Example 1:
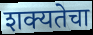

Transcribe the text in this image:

शक्यतेचा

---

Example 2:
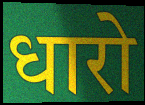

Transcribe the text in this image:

धारो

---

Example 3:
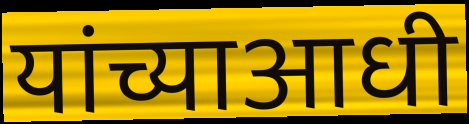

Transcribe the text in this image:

यांच्याआधी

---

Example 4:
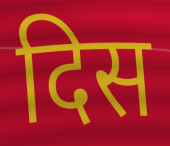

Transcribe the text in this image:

दिस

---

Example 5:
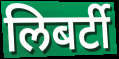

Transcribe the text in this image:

लिबर्टी